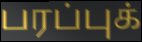
பரப்புக்